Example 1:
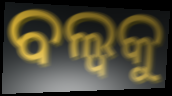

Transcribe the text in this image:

ବଲ୍ବକୁ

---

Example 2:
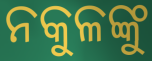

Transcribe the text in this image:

ନକୁଳଙ୍କୁ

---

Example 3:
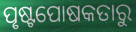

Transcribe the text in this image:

ପୃଷ୍ଟପୋଷକତାରୁ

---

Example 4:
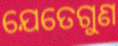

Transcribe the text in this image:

ଯେତେଗୁଣ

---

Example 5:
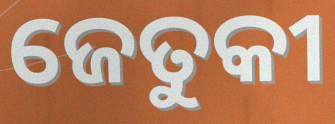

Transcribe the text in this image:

ଜେତୁକୀ